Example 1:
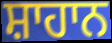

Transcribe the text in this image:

ਸ਼ਾਹਾਨ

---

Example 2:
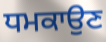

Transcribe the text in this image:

ਧਮਕਾਉਣ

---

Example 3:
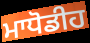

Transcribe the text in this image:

ਮਾਧੋਡੀਹ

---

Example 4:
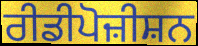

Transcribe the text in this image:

ਰੀਡੀਪੋਜ਼ੀਸ਼ਨ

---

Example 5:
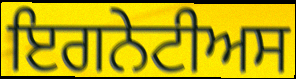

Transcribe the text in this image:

ਇਗਨੇਟੀਅਸ